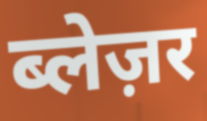
ब्लेज़र